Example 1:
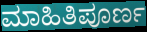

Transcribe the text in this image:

ಮಾಹಿತಿಪೂರ್ಣ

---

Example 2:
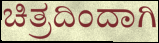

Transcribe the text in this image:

ಚಿತ್ರದಿಂದಾಗಿ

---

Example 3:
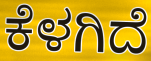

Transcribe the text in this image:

ಕೆಳಗಿದೆ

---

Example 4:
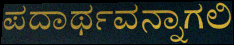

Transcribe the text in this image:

ಪದಾರ್ಥವನ್ನಾಗಲಿ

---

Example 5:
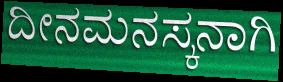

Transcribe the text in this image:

ದೀನಮನಸ್ಕನಾಗಿ